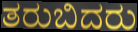
ತರುಬಿದರು